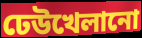
ঢেউখেলানো